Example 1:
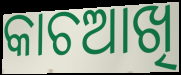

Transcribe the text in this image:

କାଚଆଖି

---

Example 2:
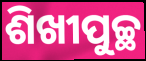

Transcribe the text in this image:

ଶିଖୀପୁଚ୍ଛ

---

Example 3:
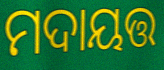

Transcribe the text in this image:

ମଦାୟତ୍ତ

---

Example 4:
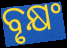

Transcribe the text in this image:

ବୃକ୍ଷଂ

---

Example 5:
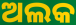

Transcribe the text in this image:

ଅଲକ